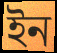
ইন